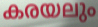
കരയലും